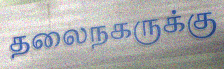
தலைநகருக்கு